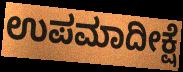
ಉಪಮಾದೀಕ್ಷೆ